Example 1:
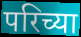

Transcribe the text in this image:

परिच्या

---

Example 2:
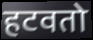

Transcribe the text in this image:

हटवतो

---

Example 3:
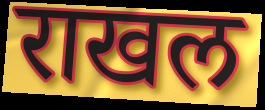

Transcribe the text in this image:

राखल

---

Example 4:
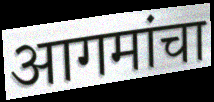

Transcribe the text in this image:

आगमांचा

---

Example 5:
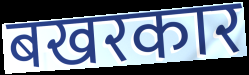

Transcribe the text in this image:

बखरकार